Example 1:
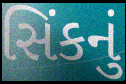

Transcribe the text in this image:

સિંકનું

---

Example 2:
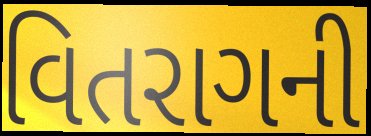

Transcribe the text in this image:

વિતરાગની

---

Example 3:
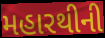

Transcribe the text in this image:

મહારથીની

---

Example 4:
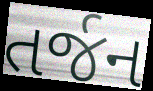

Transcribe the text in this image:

તર્જન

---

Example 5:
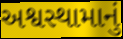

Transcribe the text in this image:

અશ્વસ્થામાનું